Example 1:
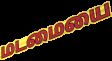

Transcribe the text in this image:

மடமையை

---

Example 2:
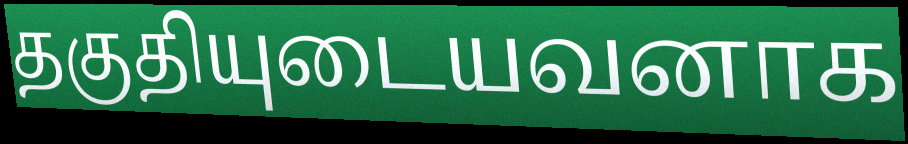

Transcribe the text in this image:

தகுதியுடையவனாக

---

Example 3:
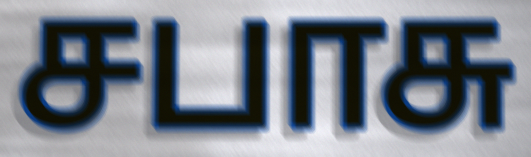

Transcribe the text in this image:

சபாசு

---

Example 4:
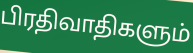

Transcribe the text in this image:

பிரதிவாதிகளும்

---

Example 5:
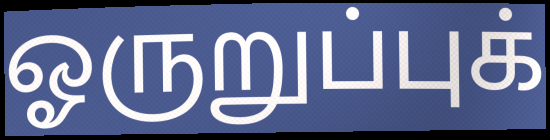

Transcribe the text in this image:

ஓருறுப்புக்